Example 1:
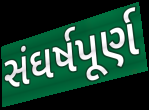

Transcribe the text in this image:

સંઘર્ષપૂર્ણ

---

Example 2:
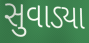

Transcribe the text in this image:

સુવાડ્યા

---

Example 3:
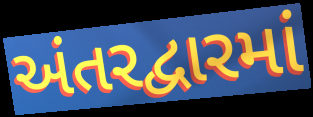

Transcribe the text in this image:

અંતરદ્વારમાં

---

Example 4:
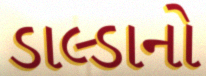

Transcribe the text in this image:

ડાલ્ડાનો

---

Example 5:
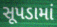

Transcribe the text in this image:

સૂપડામાં